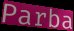
Parba